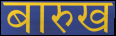
बारुख